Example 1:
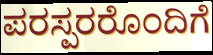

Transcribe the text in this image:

ಪರಸ್ಪರರೊಂದಿಗೆ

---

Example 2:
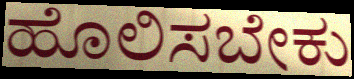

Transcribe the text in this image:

ಹೊಲಿಸಬೇಕು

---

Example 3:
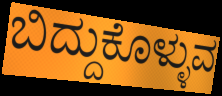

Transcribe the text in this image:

ಬಿದ್ದುಕೊಳ್ಳುವ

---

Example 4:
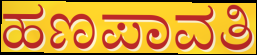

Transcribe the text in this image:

ಹಣಪಾವತಿ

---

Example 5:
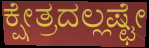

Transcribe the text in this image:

ಕ್ಷೇತ್ರದಲ್ಲಷ್ಟೇ